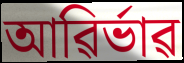
আৱিৰ্ভাৱ